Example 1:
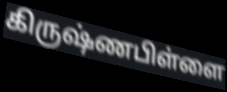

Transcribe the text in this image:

கிருஷ்ணபிள்ளை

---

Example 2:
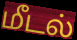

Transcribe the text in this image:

மீடல்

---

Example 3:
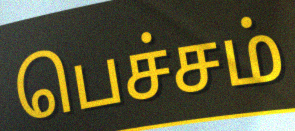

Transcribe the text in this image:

பெச்சம்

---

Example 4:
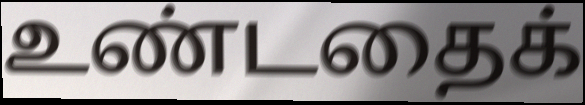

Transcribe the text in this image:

உண்டதைக்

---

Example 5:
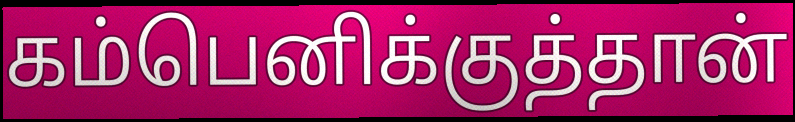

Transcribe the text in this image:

கம்பெனிக்குத்தான்